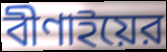
বীণাইয়ের